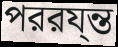
পররয্ন্ত